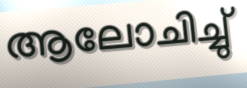
ആലോചിച്ചു്